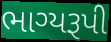
ભાગ્યરૂપી